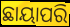
ଛାୟାପରି